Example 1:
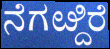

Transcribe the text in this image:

ನೆಗೞ್ದಿರೆ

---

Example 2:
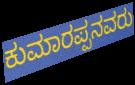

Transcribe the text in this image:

ಕುಮಾರಪ್ಪನವರು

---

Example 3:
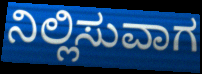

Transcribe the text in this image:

ನಿಲ್ಲಿಸುವಾಗ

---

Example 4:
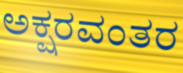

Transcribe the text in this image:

ಅಕ್ಷರವಂತರ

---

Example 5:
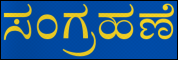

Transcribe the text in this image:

ಸಂಗ್ರಹಣೆ